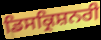
ਡਿਸਕ੍ਰਿਸ਼ਨਰੀ